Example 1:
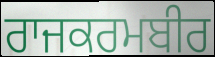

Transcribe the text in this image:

ਰਾਜਕਰਮਬੀਰ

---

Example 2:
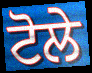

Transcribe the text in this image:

ਟੋਲੇ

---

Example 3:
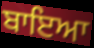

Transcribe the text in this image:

ਬਾਇਆ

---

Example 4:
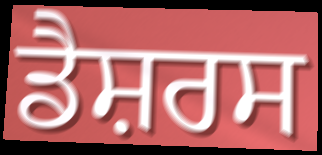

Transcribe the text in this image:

ਡੈਸ਼ਰਸ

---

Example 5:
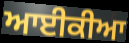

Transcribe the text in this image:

ਆਈਕੀਆ